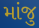
માંજુ